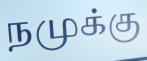
நமுக்கு